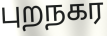
புறநகர